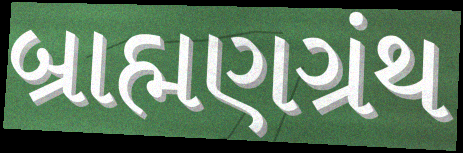
બ્રાહ્મણગ્રંથ